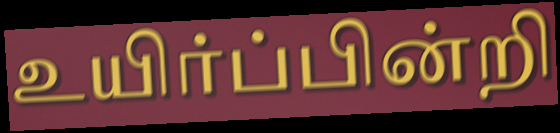
உயிர்ப்பின்றி